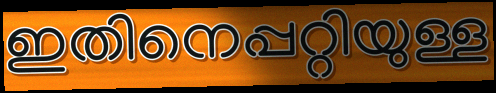
ഇതിനെപ്പറ്റിയുള്ള